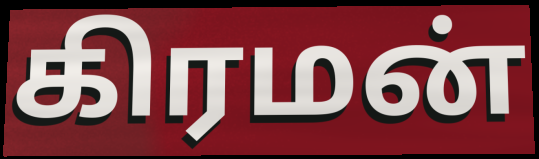
கிரமன்